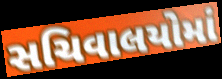
સચિવાલયોમાં